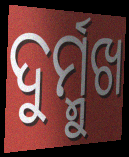
ଦୁର୍ମ୍ମୁଖ